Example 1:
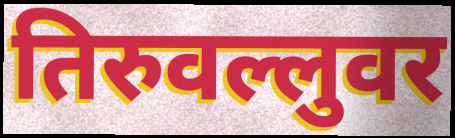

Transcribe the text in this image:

तिरुवल्लुवर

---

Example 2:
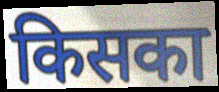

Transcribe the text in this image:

किसका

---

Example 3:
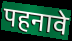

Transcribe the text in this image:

पहनावे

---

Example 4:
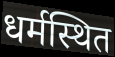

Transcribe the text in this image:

धर्मस्थित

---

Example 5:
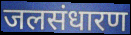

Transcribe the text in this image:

जलसंधारण